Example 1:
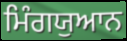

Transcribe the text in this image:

ਮਿੰਗਯੁਆਨ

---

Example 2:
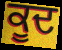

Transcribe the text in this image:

ਕੂਦ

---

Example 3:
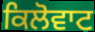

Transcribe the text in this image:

ਕਿਲੋਵਾਟ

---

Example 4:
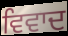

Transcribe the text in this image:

ਵਿਵਾਦ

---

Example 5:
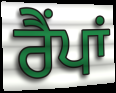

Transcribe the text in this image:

ਰੈਂਪਾਂ